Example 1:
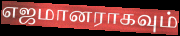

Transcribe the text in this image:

எஜமானராகவும்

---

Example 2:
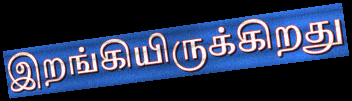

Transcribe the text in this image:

இறங்கியிருக்கிறது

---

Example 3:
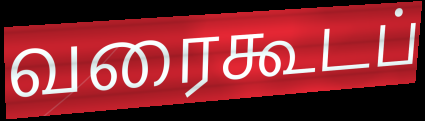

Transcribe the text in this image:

வரைகூடப்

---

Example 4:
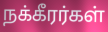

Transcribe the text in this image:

நக்கீரர்கள்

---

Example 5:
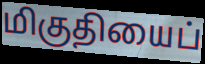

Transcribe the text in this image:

மிகுதியைப்